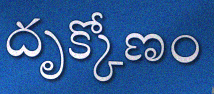
దృక్కోణం